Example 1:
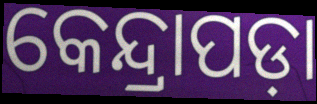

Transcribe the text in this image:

କେନ୍ଦ୍ରାପଡ଼ା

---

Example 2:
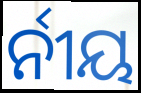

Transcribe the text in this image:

ର୍ନୀୟ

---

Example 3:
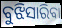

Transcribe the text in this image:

ବୁଝିସାରିବା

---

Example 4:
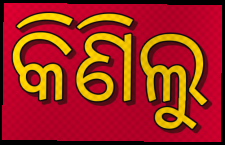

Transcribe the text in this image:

କିଣିଲୁ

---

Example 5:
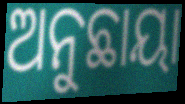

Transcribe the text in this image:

ଅନୁଛାୟା